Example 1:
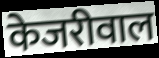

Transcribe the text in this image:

केजरीवाल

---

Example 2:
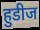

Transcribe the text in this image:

हुडीज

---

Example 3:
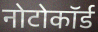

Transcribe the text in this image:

नोटोकॉर्ड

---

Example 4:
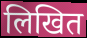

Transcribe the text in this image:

लिखित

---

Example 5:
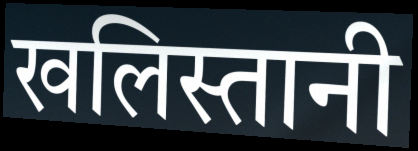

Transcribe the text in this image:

खलिस्तानी